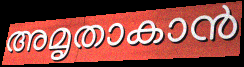
അമൃതാകാൻ